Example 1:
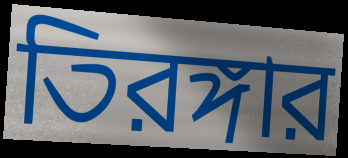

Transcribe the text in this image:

তিরঙ্গার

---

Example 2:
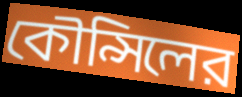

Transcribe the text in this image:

কৌন্সিলের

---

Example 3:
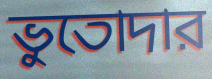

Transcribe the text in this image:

ভুতোদার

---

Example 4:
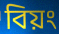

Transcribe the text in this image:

বিয়ং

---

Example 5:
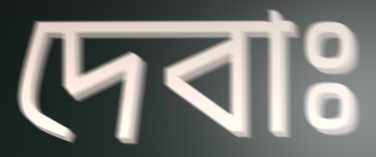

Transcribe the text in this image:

দেবাঃ